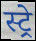
स्ट्रे